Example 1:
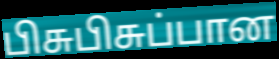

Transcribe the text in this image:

பிசுபிசுப்பான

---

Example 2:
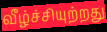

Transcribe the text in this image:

வீழ்ச்சியுற்றது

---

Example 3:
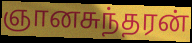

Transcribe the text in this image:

ஞானசுந்தரன்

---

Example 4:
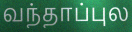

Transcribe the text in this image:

வந்தாப்புல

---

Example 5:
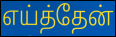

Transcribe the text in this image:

எய்த்தேன்